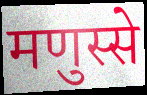
मणुस्से